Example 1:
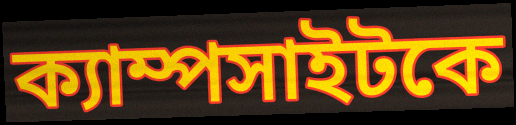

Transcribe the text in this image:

ক্যাম্পসাইটকে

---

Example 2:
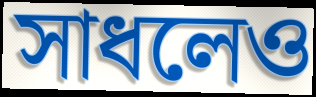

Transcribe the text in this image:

সাধলেও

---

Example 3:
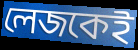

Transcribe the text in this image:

লেজকেই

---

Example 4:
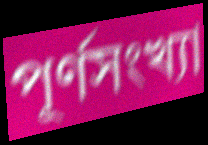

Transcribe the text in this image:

পূর্ণসংখ্যা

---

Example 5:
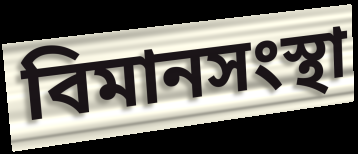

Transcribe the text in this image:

বিমানসংস্থা